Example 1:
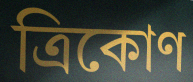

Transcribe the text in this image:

ত্রিকোণ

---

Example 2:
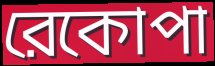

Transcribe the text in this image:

রেকোপা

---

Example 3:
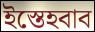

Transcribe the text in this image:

ইস্তেহবাব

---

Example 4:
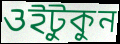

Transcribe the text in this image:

ওইটুকুন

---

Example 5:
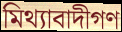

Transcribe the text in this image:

মিথ্যাবাদীগণ